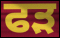
ਫੜ